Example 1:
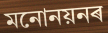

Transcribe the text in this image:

মনোনয়নৰ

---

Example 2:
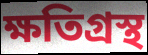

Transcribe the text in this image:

ক্ষতিগ্ৰস্থ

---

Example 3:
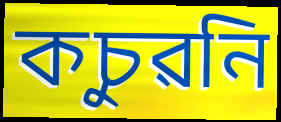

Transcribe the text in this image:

কচুৱনি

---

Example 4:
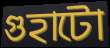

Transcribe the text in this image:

গুহাটো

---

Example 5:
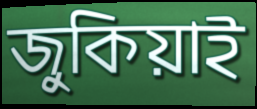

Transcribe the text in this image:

জুকিয়াই